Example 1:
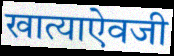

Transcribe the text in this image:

खात्याऐवजी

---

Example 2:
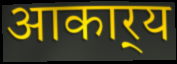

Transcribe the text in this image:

आकार्य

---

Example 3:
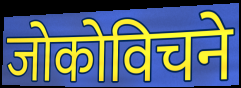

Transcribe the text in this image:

जोकोविचने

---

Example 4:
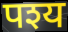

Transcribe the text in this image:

पश्य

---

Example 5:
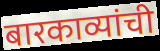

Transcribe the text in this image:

बारकाव्यांची